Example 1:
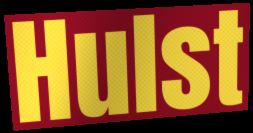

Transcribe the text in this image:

Hulst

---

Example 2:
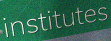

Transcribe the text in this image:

institutes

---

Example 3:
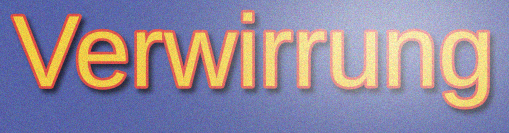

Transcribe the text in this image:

Verwirrung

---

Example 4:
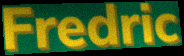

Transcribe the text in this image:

Fredric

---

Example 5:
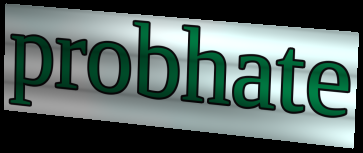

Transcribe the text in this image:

probhate